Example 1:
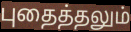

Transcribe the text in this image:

புதைத்தலும்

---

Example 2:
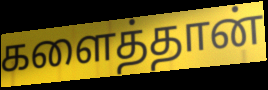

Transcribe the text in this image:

களைத்தான்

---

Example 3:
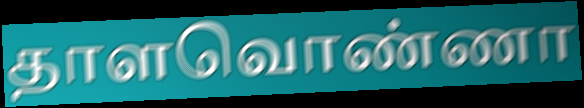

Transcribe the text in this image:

தாளவொண்ணா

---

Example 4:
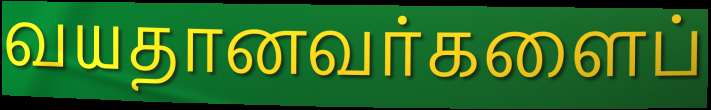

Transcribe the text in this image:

வயதானவர்களைப்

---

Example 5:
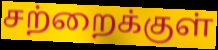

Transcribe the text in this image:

சற்றைக்குள்